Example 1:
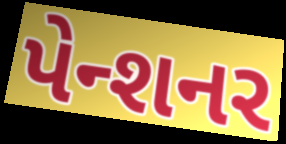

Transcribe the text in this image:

પેન્શનર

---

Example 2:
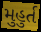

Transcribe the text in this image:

મુહુર્ત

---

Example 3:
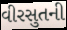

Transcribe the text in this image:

વીરસુતની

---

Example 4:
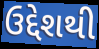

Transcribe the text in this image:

ઉદ્દેશથી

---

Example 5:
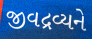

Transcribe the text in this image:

જીવદ્રવ્યને